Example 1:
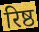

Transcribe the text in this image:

रिष्ठ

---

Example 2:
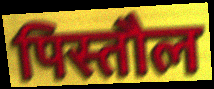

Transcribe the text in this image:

पिस्तौल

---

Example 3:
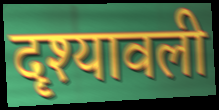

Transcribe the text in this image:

दृश्यावली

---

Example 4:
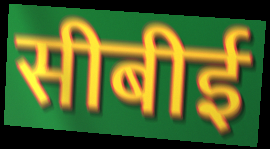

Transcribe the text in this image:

सीबीई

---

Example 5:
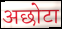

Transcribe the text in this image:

अछोटा